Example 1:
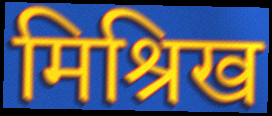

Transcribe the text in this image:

मिश्रिख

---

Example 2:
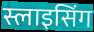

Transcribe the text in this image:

स्लाइसिंग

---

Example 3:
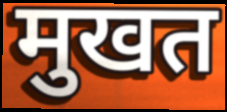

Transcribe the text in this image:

मुखत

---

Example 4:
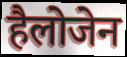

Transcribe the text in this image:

हैलोजेन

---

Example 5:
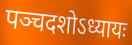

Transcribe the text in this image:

पञ्चदशोऽध्यायः